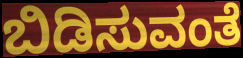
ಬಿಡಿಸುವಂತೆ